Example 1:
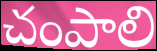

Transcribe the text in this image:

చంపాలి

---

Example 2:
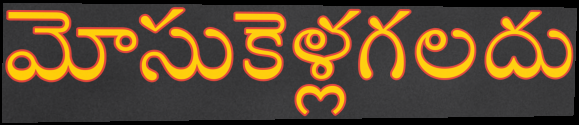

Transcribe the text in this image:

మోసుకెళ్లగలదు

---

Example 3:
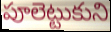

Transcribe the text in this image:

పూలెట్టుకుని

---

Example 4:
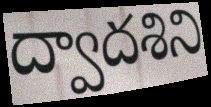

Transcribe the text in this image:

ద్వాదశిని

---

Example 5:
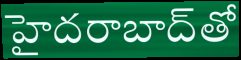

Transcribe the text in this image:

హైదరాబాద్‌తో